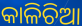
କାଳିଚିଆ